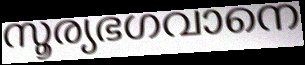
സൂര്യഭഗവാനെ